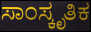
ಸಾಂಸ್ಕೃತಿಕ